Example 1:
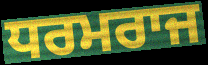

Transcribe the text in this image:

ਧਰਮਰਾਜ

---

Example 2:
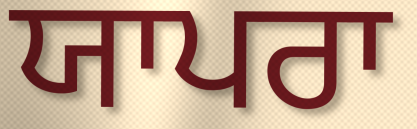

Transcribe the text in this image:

ਯਾਪਰਾ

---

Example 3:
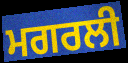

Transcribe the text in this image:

ਮਗਰਲੀ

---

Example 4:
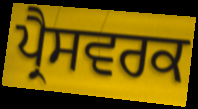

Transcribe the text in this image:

ਪ੍ਰੈਸਵਰਕ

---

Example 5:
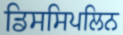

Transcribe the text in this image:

ਡਿਸਸਿਪਲਿਨ